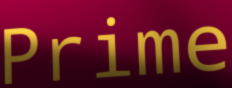
Prime